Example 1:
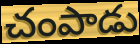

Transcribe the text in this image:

చంపాడు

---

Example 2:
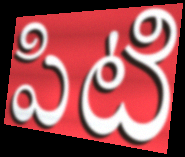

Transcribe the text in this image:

పిటి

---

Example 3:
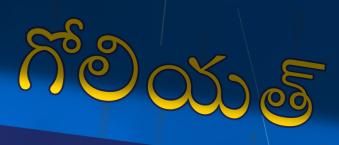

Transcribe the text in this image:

గోలియత్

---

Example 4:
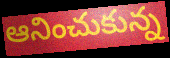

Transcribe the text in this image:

ఆనించుకున్న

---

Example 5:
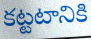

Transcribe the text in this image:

కట్టటానికి